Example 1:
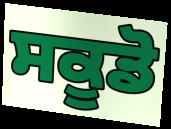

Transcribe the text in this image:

ਸਕੂਡੋ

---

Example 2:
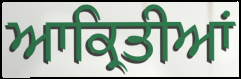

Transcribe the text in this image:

ਆਕ੍ਰਿਤੀਆਂ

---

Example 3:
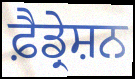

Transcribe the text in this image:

ਫ਼ੈਡ੍ਰੇਸ਼ਨ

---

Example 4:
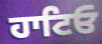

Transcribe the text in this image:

ਹਾਟਿਓ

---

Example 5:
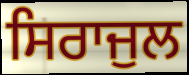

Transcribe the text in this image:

ਸਿਰਾਜੁਲ